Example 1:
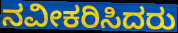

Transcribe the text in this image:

ನವೀಕರಿಸಿದರು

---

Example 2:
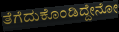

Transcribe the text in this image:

ತೆಗೆದುಕೊಂಡಿದ್ದೇನೋ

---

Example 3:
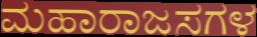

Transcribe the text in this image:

ಮಹಾರಾಜಸಗಳ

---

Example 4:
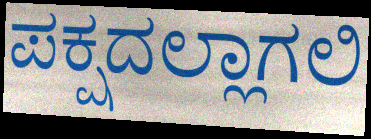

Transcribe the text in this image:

ಪಕ್ಷದಲ್ಲಾಗಲಿ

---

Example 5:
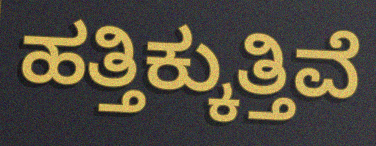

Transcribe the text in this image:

ಹತ್ತಿಕ್ಕುತ್ತಿವೆ